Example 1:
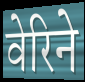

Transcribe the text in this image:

वेरिने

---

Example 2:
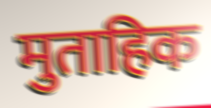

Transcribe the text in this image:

मुताहिक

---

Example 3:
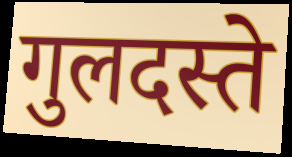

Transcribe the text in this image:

गुलदस्ते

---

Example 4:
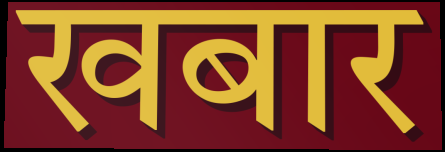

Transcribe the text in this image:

खबार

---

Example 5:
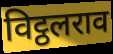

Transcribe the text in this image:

विट्ठलराव